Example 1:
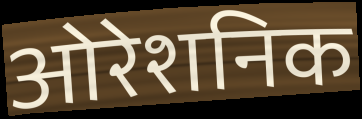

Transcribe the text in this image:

ओरेशनिक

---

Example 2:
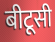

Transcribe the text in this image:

बीटूसी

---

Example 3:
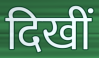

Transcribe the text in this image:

दिखीं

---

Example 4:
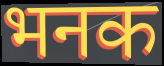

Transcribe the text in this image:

भनक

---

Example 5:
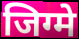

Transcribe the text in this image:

जिग्मे